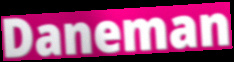
Daneman